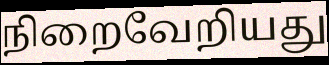
நிறைவேறியது